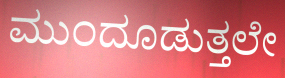
ಮುಂದೂಡುತ್ತಲೇ